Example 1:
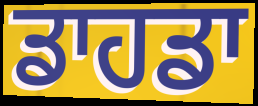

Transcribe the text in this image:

ਡਾਹਡਾ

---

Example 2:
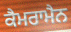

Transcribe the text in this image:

ਕੈਮਰਾਮੈਨ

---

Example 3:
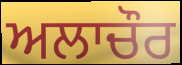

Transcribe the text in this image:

ਅਲਾਚੌਰ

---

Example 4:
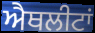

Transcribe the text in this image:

ਐਥਲੀਟਾਂ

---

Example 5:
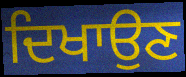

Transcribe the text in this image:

ਦਿਖਾਉਣ